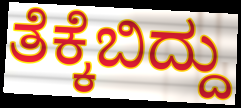
ತೆಕ್ಕೆಬಿದ್ದು